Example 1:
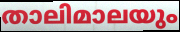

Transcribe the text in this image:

താലിമാലയും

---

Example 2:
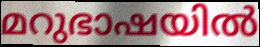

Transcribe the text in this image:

മറുഭാഷയിൽ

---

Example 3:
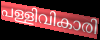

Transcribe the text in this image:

പള്ളിവികാരി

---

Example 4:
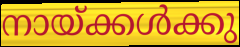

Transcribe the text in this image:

നായ്ക്കൾക്കു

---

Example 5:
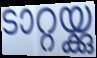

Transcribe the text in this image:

ടാറ്റയ്ക്കു